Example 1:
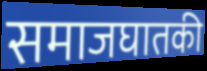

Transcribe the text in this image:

समाजघातकी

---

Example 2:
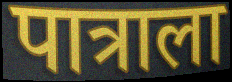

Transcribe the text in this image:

पात्राला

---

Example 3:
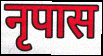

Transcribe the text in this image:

नृपास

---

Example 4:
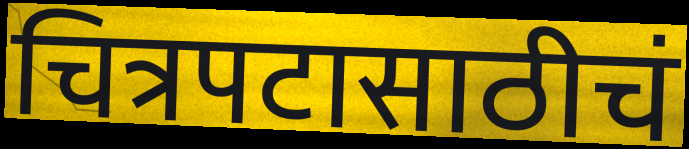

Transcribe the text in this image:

चित्रपटासाठीचं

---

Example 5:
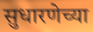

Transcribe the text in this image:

सुधारणेच्या